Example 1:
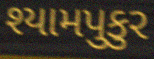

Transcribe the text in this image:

શ્યામપુકુર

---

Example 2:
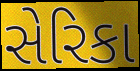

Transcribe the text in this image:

સેરિકા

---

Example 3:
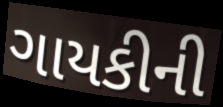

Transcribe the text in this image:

ગાયકીની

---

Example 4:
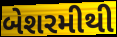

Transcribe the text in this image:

બેશરમીથી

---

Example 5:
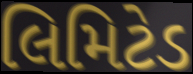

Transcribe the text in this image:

લિમિટેડ